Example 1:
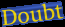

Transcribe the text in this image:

Doubt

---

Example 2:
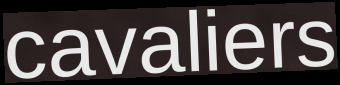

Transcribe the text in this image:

cavaliers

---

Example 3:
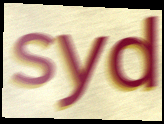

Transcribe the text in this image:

syd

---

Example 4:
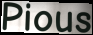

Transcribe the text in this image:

Pious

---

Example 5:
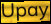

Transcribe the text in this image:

Upay